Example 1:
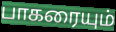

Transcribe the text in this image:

பாகரையும்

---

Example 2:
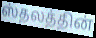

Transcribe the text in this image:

ஸ்தலத்தின்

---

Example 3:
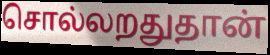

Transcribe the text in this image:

சொல்லறதுதான்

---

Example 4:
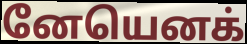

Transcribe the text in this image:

னேயெனக்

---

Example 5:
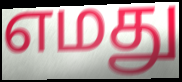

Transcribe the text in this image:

எமது